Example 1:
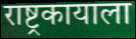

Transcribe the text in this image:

राष्ट्रकायाला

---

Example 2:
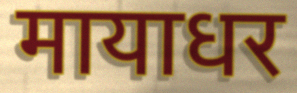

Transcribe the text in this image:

मायाधर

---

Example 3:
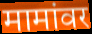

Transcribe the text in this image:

मामांवर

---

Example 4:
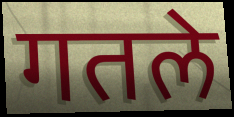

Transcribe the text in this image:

गतले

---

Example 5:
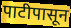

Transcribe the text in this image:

पाटीपासून